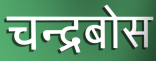
चन्द्रबोस